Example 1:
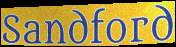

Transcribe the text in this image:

Sandford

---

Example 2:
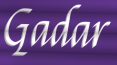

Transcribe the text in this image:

Gadar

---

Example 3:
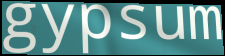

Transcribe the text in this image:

gypsum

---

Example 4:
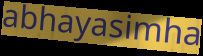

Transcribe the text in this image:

abhayasimha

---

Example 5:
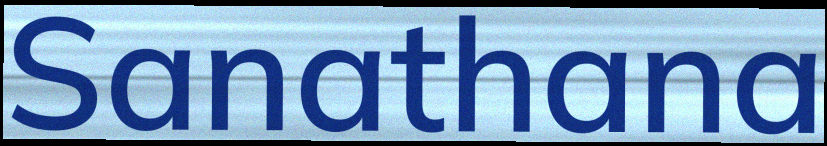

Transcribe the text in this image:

Sanathana